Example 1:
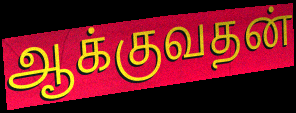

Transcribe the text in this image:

ஆக்குவதன்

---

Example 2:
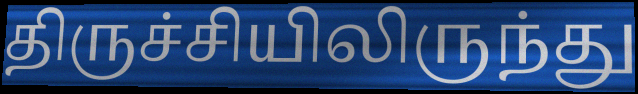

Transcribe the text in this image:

திருச்சியிலிருந்து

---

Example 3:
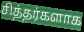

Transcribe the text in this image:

சித்தர்களாக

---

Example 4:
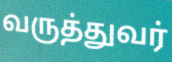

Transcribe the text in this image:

வருத்துவர்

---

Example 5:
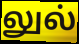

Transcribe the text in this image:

லுல்